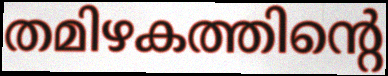
തമിഴകത്തിന്റെ